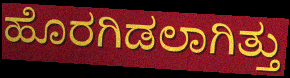
ಹೊರಗಿಡಲಾಗಿತ್ತು